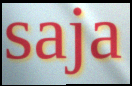
saja